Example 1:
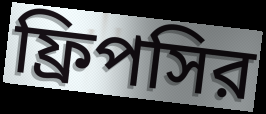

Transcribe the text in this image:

ফ্রিপসির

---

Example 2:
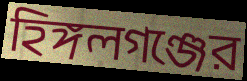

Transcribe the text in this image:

হিঙ্গলগঞ্জের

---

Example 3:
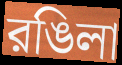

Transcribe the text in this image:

রঙিলা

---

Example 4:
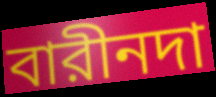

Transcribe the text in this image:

বারীনদা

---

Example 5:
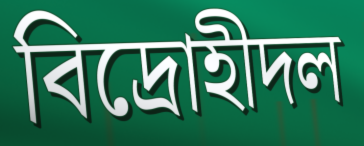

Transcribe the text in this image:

বিদ্রোহীদল